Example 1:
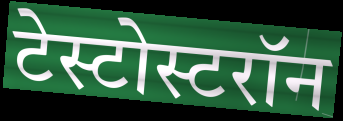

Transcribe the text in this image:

टेस्टोस्टरॉन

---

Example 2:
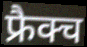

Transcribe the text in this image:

फ्रैक्च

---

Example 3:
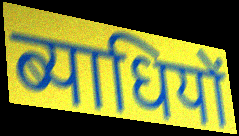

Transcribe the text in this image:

ब्याधियों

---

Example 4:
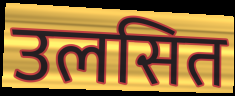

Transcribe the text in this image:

उलसित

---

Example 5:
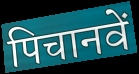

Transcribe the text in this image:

पिचानवें